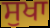
ਸੁਖਾ